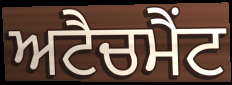
ਅਟੈਚਮੈਂਟ